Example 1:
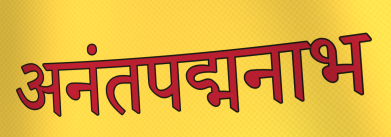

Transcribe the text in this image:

अनंतपद्मनाभ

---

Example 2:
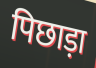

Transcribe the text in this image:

पिछाड़ा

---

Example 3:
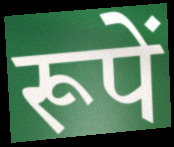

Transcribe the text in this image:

रूपें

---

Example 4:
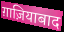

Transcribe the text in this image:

ग़ाज़ियाबाद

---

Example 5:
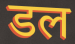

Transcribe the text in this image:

डल